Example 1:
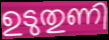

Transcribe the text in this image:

ഉടുതുണി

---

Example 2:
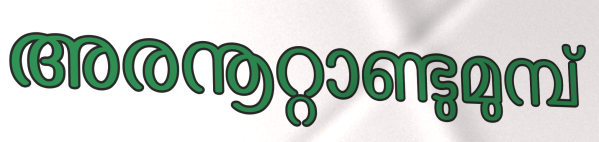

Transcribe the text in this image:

അരനൂറ്റാണ്ടുമുമ്പ്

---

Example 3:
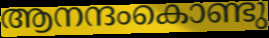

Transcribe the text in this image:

ആനന്ദംകൊണ്ടു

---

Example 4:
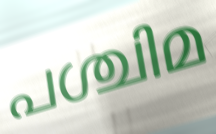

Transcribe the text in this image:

പശ്ചിമ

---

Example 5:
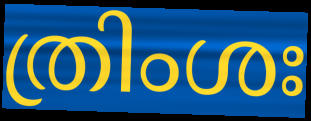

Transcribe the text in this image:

ത്രിംശഃ